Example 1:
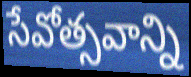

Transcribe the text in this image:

సేవోత్సవాన్ని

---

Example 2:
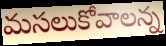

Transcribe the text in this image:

మసలుకోవాలన్న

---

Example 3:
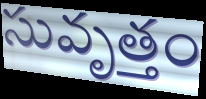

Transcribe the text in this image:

సువృత్తం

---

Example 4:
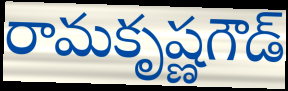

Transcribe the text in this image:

రామకృష్ణగౌడ్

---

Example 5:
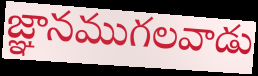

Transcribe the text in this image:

జ్ఞానముగలవాడు